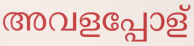
അവളപ്പോള്